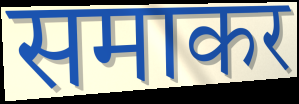
समाकर